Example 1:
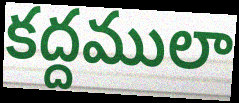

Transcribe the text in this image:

కద్దములా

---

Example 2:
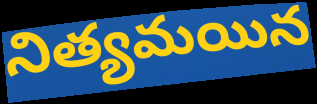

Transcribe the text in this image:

నిత్యమయిన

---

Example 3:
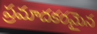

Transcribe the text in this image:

ప్రమాదకరమైన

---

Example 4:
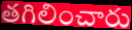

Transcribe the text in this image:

తగిలించారు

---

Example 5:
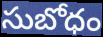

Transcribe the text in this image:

సుబోధం